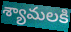
శ్యామలకి